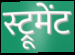
स्ट्रूमेंट